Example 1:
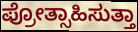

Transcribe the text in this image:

ಪ್ರೋತ್ಸಾಹಿಸುತ್ತಾ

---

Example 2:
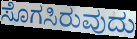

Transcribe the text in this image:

ಸೊಗಸಿರುವುದು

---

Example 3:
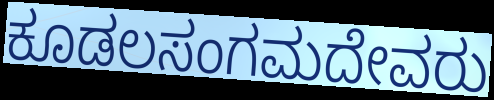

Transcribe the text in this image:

ಕೂಡಲಸಂಗಮದೇವರು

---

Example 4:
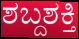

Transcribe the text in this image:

ಶಬ್ದಶಕ್ತಿ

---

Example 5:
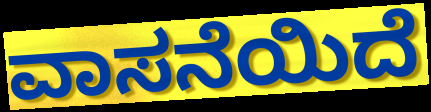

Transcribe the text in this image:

ವಾಸನೆಯಿದೆ